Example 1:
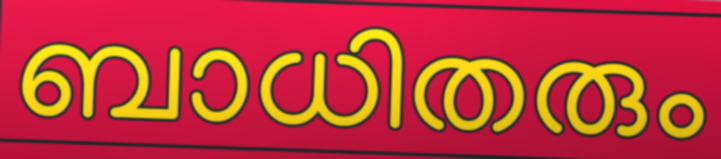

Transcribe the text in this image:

ബാധിതരും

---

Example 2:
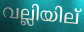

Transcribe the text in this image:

വല്ലിയില്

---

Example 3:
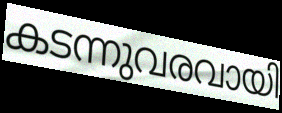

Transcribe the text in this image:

കടന്നുവരവായി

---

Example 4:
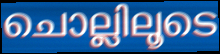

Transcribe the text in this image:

ചൊല്ലിലൂടെ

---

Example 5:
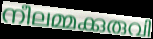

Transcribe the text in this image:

നീലമ്മക്കുരുവി